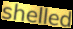
shelled